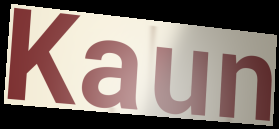
Kaun